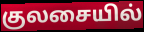
குலசையில்